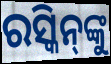
ରସ୍କିନ୍‌ଙ୍କୁ